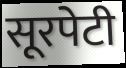
सूरपेटी